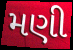
મણી